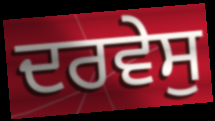
ਦਰਵੇਸੁ